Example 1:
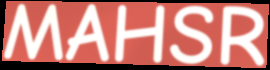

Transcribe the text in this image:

MAHSR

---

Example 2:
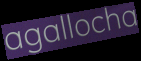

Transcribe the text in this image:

agallocha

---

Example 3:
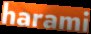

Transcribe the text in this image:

harami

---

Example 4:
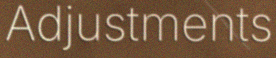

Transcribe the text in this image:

Adjustments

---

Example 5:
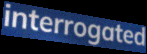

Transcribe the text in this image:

interrogated